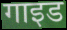
गाइड